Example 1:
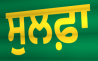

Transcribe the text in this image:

ਸੁਲਫ਼ਾ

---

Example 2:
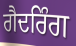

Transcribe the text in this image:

ਗੈਦਰਿੰਗ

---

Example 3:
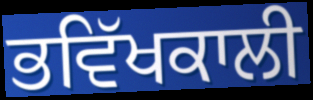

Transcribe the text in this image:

ਭਵਿੱਖਕਾਲੀ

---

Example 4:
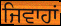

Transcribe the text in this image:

ਜਿਵਾਹਾਂ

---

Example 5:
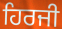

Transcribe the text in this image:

ਹਿਰਜੀ